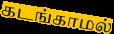
கடங்காமல்